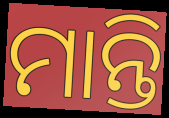
ମାନ୍ତି